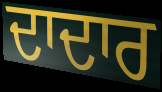
ਦਾਦਾਰ